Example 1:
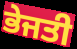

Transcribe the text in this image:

ਭੇਜਤੀ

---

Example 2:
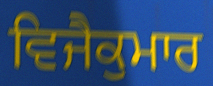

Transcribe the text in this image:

ਵਿਜੈਕੁਮਾਰ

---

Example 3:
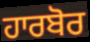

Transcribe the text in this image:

ਹਾਰਬੋਰ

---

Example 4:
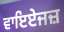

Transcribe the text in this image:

ਵਾਇਏਜਜ਼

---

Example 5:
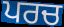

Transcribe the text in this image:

ਪਰਚ